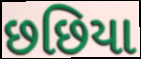
છછિયા